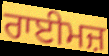
ਰਾਈਮਜ਼